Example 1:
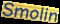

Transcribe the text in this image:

Smolin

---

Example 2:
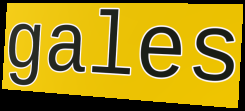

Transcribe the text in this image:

gales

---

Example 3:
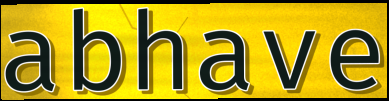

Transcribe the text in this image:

abhave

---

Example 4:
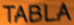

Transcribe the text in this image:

TABLA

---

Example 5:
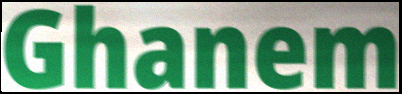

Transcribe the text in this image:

Ghanem